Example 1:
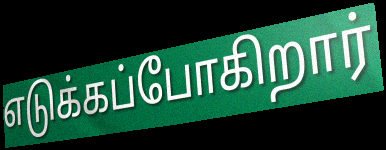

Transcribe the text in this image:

எடுக்கப்போகிறார்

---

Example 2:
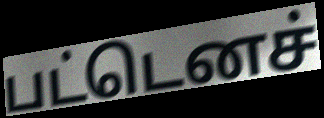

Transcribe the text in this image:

பட்டெனச்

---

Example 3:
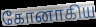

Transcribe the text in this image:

கோனாகிய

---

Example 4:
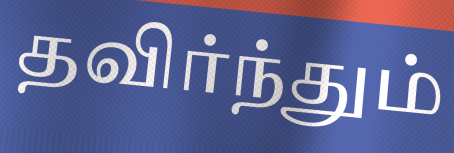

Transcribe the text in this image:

தவிர்ந்தும்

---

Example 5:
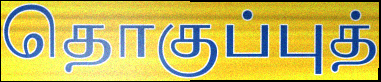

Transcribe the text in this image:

தொகுப்புத்